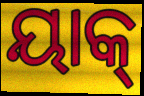
ୟାକ୍